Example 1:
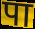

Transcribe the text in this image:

पा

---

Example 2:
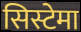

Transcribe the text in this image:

सिस्टेमा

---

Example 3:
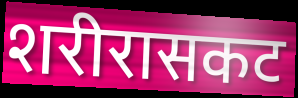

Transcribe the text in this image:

शरीरासकट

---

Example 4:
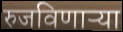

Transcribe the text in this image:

रुजविणाऱ्या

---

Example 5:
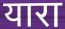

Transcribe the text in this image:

यारा